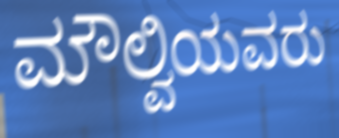
ಮೌಲ್ವಿಯವರು